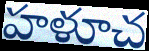
హళూచ